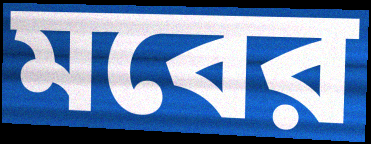
মবের